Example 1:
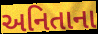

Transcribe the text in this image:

અનિતાના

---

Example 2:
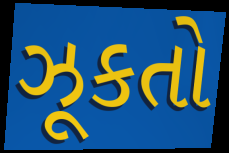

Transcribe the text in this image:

ઝૂકતો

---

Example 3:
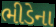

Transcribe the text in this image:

ભીડેના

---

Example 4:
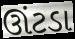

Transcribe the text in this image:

ઊંટડા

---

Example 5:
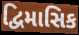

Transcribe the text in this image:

દ્વિમાસિક